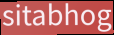
sitabhog